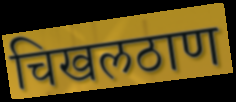
चिखलठाण